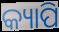
କ୍ୟାପି